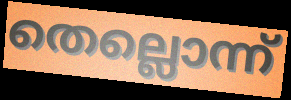
തെല്ലൊന്ന്